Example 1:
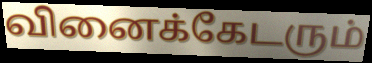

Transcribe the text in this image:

வினைக்கேடரும்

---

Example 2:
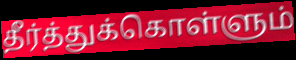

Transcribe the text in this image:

தீர்த்துக்கொள்ளும்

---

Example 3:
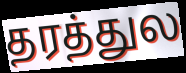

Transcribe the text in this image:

தரத்துல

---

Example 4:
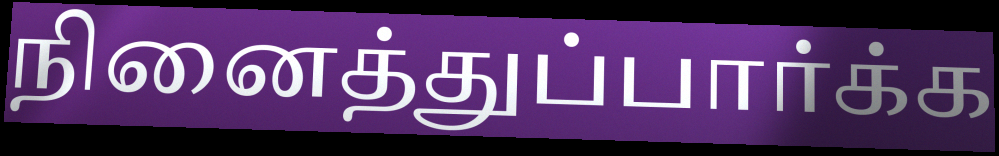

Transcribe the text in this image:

நினைத்துப்பார்க்க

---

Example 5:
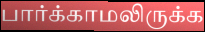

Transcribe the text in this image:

பார்க்காமலிருக்க